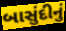
બાસુંદીનું